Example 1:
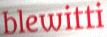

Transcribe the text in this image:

blewitti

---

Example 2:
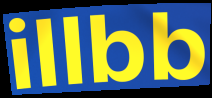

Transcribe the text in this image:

illbb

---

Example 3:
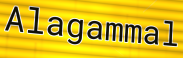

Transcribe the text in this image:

Alagammal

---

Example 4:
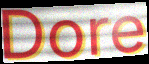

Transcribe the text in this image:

Dore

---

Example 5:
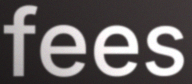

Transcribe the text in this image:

fees